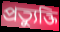
প্রত্যুক্তি